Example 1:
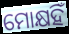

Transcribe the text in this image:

ମୋକ୍ଷହିଁ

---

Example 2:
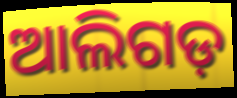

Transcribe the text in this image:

ଆଲିଗଡ଼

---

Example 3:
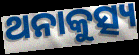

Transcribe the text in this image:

ଥନାକୁତ୍ସ୍ୟ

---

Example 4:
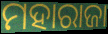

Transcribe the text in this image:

ମହାରାଜା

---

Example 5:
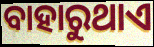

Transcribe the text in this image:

ବାହାରୁଥାଏ